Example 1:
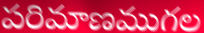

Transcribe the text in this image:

పరిమాణముగల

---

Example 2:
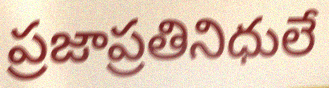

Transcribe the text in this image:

ప్రజాప్రతినిధులే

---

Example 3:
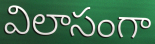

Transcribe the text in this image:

విలాసంగా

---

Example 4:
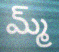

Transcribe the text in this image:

మ్మ్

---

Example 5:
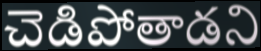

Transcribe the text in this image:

చెడిపోతాడని